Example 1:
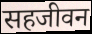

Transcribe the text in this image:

सहजीवन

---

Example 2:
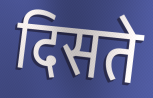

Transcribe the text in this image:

दिसते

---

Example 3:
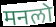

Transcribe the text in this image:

मनलो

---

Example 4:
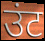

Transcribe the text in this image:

उंट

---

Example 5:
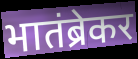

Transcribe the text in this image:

भातंब्रेकर